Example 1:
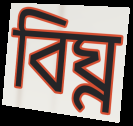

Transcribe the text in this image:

বিঘ্ন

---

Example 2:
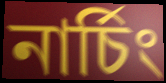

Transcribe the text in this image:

নাৰ্চিং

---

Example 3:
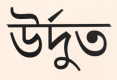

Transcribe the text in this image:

উৰ্দুত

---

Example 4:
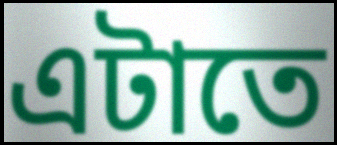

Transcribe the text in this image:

এটাতে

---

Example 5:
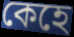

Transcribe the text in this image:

কেহে